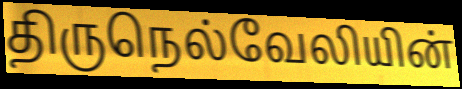
திருநெல்வேலியின்